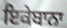
ਇਕੇਬਾਨਾ